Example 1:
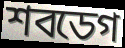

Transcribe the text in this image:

শবডেগ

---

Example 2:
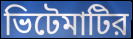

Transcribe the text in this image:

ভিটেমাটির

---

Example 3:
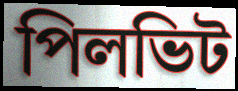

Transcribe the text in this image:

পিলভিট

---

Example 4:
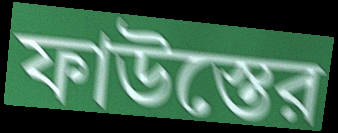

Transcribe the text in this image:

ফাউস্তের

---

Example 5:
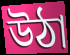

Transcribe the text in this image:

উঠা